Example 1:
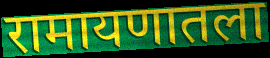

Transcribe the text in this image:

रामायणातला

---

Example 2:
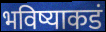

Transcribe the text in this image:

भविष्याकडं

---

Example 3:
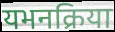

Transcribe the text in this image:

यभनक्रिया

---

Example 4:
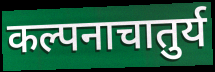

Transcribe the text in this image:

कल्पनाचातुर्य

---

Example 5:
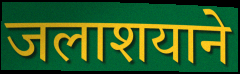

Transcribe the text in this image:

जलाशयाने